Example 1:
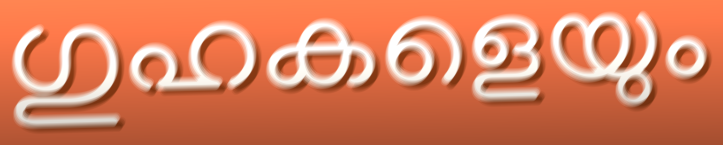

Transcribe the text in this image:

ഗുഹകളെയും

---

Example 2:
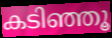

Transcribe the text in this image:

കടിഞ്ഞൂ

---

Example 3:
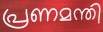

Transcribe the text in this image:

പ്രണമന്തി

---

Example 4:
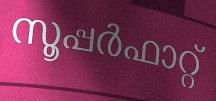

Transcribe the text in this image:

സൂപ്പർഫാറ്റ്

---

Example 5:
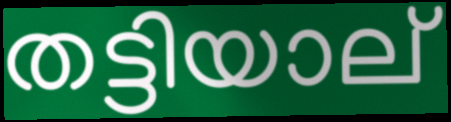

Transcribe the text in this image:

തട്ടിയാല്